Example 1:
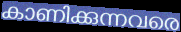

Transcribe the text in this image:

കാണിക്കുന്നവരെ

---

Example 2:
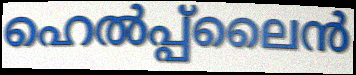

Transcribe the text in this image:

ഹെൽപ്പ്ലൈൻ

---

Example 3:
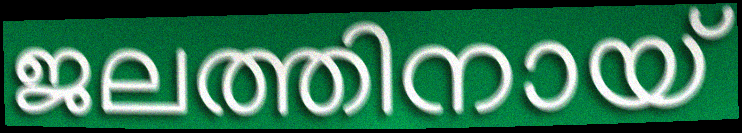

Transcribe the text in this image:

ജലത്തിനായ്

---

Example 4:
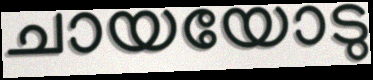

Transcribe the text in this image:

ചായയോടു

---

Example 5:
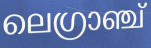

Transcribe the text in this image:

ലെഗ്രാഞ്ച്